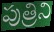
పుత్రిని